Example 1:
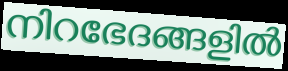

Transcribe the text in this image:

നിറഭേദങ്ങളിൽ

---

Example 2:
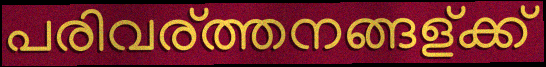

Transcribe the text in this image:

പരിവര്ത്തനങ്ങള്ക്ക്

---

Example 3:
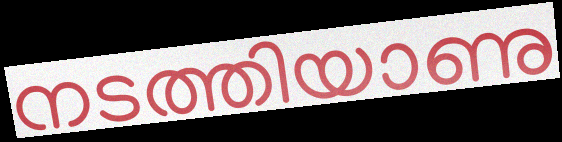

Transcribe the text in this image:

നടത്തിയാണു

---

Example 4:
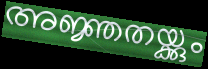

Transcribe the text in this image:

അജ്ഞതയ്ക്കും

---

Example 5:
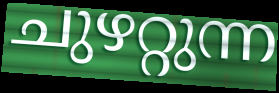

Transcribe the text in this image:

ചുഴറ്റുന്ന